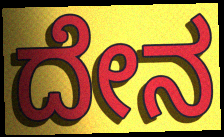
ದೇನ